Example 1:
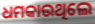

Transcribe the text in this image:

ଧମକାଉଥିଲେ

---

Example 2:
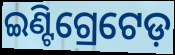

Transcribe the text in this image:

ଇଣ୍ଟିଗ୍ରେଟେଡ଼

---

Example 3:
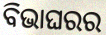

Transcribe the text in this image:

ବିଭାଘରର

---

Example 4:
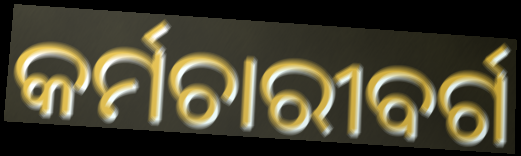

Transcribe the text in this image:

କର୍ମଚାରୀବର୍ଗ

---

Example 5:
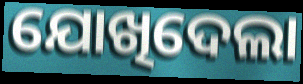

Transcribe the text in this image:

ଯୋଖିଦେଲା